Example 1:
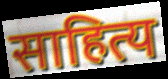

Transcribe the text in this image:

साहित्‍य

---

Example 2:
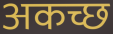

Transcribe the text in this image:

अकच्छ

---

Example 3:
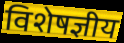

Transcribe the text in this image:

विशेषज्ञीय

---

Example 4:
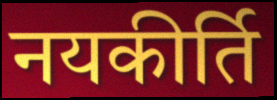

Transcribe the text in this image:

नयकीर्ति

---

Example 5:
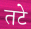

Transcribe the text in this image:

तटे